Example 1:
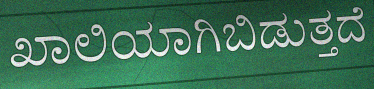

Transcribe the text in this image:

ಖಾಲಿಯಾಗಿಬಿಡುತ್ತದೆ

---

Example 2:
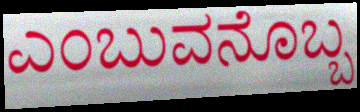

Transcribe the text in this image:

ಎಂಬುವನೊಬ್ಬ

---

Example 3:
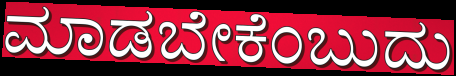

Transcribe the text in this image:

ಮಾಡಬೇಕೆಂಬುದು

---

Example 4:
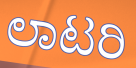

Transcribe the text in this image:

ಲಾಟರಿ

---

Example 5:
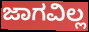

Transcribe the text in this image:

ಜಾಗವಿಲ್ಲ